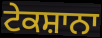
ਟੇਕਸ਼ਾਨਾ